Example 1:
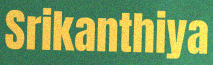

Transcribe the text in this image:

Srikanthiya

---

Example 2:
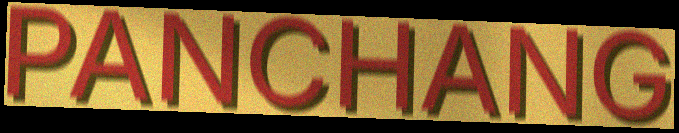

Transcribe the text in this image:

PANCHANG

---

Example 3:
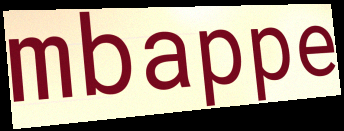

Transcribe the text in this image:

mbappe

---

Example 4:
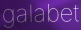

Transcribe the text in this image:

galabet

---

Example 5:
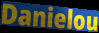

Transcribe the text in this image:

Danielou